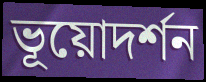
ভূয়োদর্শন